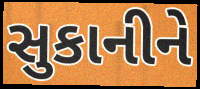
સુકાનીને